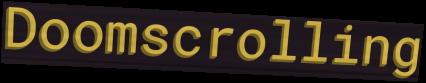
Doomscrolling